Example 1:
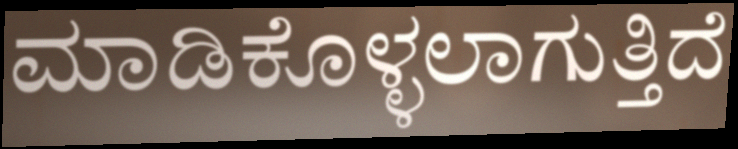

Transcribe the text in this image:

ಮಾಡಿಕೊಳ್ಳಲಾಗುತ್ತಿದೆ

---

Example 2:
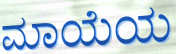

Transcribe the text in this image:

ಮಾಯೆಯ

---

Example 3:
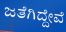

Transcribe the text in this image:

ಜತೆಗಿದ್ದೇವೆ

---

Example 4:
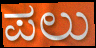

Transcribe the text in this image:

ಪಲು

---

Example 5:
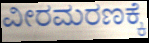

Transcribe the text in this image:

ವೀರಮರಣಕ್ಕೆ